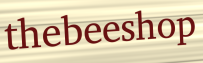
thebeeshop